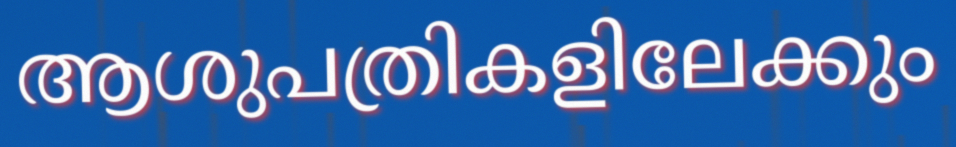
ആശുപത്രികളിലേക്കും